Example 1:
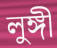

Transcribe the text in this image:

লুঙ্গী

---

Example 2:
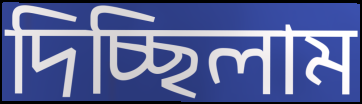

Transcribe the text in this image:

দিচ্ছিলাম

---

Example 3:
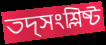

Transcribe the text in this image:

তদ্‌সংশ্লিষ্ট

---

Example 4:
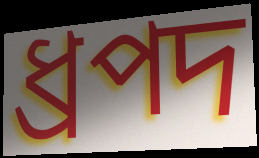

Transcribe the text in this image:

ধ্রপদ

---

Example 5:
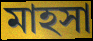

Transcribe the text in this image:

মাহসা